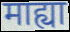
माह्या